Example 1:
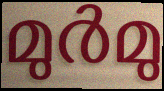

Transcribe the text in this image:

മുർമു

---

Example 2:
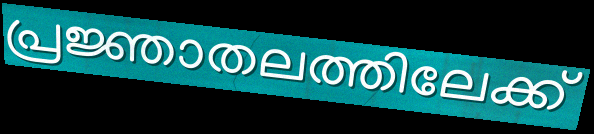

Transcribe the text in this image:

പ്രജ്ഞാതലത്തിലേക്ക്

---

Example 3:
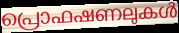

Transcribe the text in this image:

പ്രൊഫഷണലുകൾ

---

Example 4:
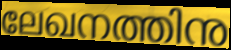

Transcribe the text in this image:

ലേഖനത്തിനു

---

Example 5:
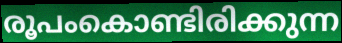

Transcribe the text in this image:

രൂപംകൊണ്ടിരിക്കുന്ന